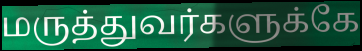
மருத்துவர்களுக்கே